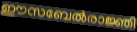
ഈസബേൽരാജ്ഞി